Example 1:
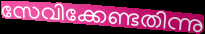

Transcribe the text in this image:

സേവിക്കേണ്ടതിന്നു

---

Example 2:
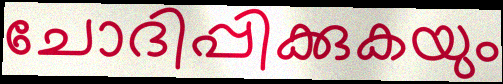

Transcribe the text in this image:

ചോദിപ്പിക്കുകയും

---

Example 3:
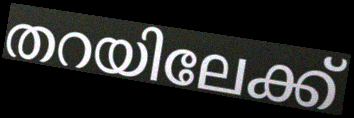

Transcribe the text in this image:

തറയിലേക്ക്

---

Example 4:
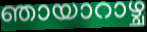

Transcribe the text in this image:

ഞായാറാഴ്ച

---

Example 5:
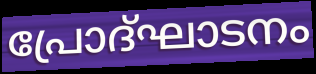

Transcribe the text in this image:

പ്രോദ്ഘാടനം